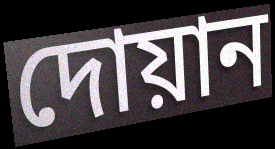
দোয়ান